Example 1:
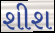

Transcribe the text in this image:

શીશ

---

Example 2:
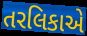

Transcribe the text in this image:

તરલિકાએ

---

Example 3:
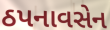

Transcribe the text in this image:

ઠપનાવસેન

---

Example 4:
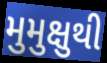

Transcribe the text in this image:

મુમુક્ષુથી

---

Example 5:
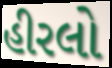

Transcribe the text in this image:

હીરલો